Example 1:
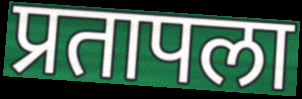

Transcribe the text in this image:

प्रतापला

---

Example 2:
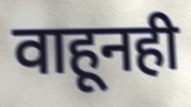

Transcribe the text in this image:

वाहूनही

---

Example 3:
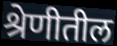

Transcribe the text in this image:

श्रेणीतील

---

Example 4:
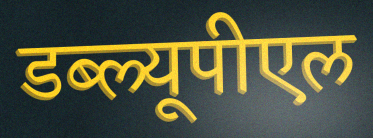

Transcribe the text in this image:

डब्ल्यूपीएल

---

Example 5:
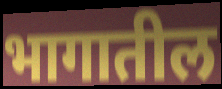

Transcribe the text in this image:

भागातील